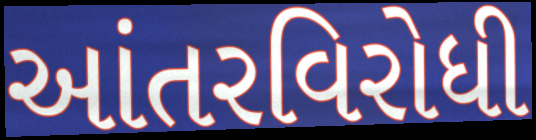
આંતરવિરોધી